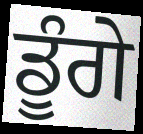
ਡੂੰਗੇ